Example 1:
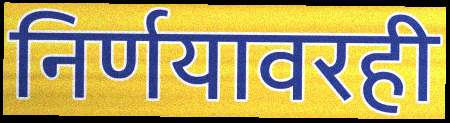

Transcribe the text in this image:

निर्णयावरही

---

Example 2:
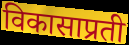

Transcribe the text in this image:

विकासाप्रती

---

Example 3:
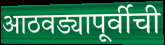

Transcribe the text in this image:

आठवड्यापूर्वीची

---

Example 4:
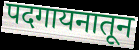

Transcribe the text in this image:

पदगायनातून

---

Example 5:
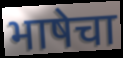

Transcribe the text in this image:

भाषेचा